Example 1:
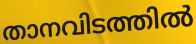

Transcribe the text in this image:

താനവിടത്തിൽ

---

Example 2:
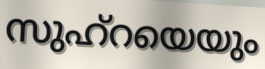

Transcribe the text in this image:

സുഹ്റയെയും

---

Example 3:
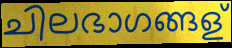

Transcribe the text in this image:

ചിലഭാഗങ്ങള്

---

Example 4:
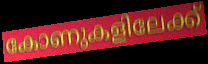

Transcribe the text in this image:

കോണുകളിലേക്ക്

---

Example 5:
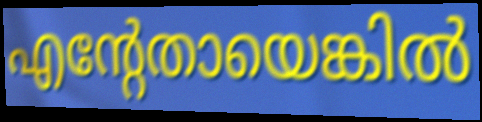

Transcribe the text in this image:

എന്റേതായെങ്കിൽ